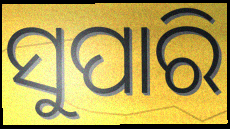
ସୁପାରି